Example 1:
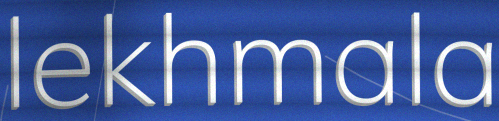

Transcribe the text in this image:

lekhmala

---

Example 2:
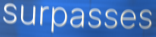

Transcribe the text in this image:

surpasses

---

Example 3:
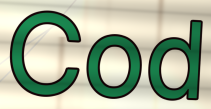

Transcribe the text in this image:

Cod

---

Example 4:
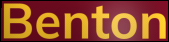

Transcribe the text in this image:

Benton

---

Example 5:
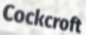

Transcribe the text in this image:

Cockcroft